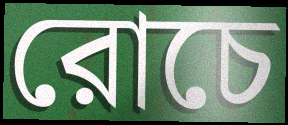
রোচে